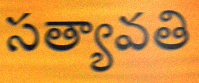
సత్యావతి